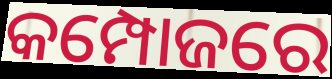
କମ୍ପୋଜରେ